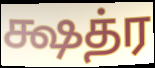
க்ஷத்ர